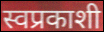
स्वप्रकाशी